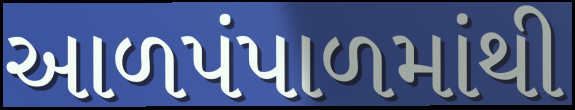
આળપંપાળમાંથી